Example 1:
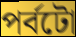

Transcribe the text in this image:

পৰ্বটো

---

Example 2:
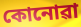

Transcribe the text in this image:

কোনোৱা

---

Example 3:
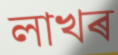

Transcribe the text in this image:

লাখৰ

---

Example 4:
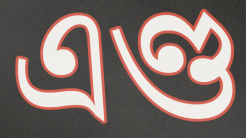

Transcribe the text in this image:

এণ্ড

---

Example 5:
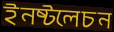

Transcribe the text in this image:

ইনষ্টলেচন